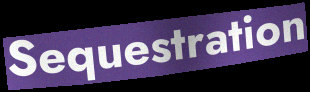
Sequestration